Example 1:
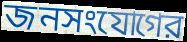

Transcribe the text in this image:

জনসংযোগের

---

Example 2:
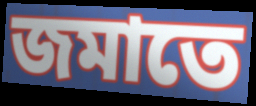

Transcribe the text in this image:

জমাতে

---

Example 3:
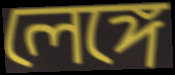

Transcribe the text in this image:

লেঙ্গে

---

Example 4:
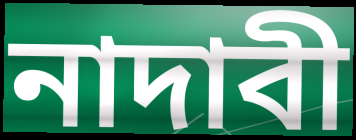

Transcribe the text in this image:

নাদাবী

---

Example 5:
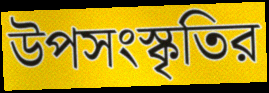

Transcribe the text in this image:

উপসংস্কৃতির